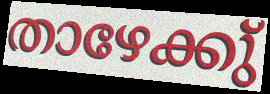
താഴേക്കു്